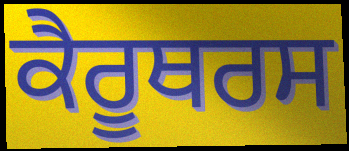
ਕੈਰੂਥਰਸ